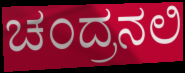
ಚಂದ್ರನಲಿ